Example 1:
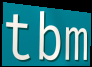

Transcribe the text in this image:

tbm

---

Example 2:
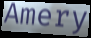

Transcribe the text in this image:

Amery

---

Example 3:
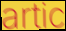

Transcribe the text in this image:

artic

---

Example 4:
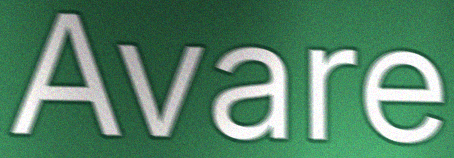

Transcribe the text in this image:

Avare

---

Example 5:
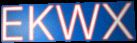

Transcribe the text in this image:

EKWX